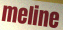
meline